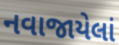
નવાજાયેલાં